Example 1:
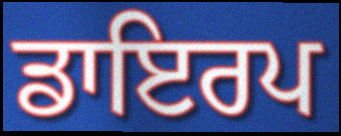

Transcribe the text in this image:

ਡਾਇਰਪ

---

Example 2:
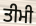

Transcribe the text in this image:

ਤੀਮੀ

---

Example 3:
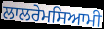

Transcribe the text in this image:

ਲਾਲਰੇਮਸਿਆਮੀ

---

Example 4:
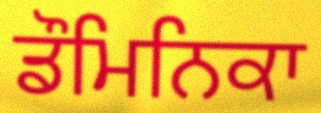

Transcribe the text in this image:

ਡੌਮਿਨਿਕਾ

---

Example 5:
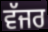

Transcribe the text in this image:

ਵੱਜਰ